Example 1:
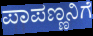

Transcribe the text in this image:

ಪಾಪಣ್ಣನಿಗೆ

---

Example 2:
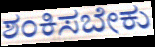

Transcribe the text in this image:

ಶಂಕಿಸಬೇಕು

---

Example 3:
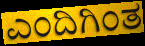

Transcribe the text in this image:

ಎಂದಿಗಿಂತ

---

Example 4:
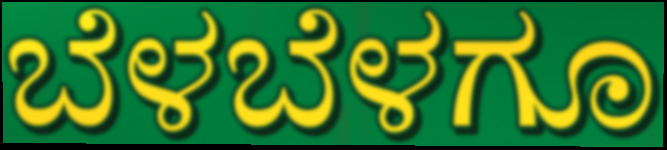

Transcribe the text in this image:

ಬೆಳಬೆಳಗೂ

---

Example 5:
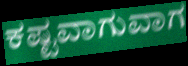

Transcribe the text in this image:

ಕಷ್ಟವಾಗುವಾಗ